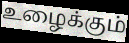
உழைக்கும்